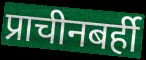
प्राचीनबर्ही